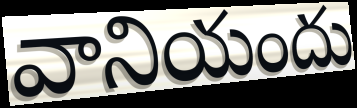
వానియందు